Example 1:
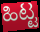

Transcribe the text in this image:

ಹಿಟ್ಟ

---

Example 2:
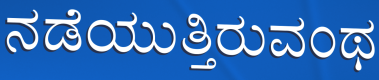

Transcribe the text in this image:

ನಡೆಯುತ್ತಿರುವಂಥ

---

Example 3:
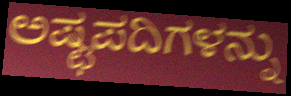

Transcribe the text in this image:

ಅಷ್ಟಪದಿಗಳನ್ನು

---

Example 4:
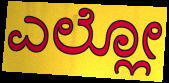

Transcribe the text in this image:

ಎಲ್ಲೋ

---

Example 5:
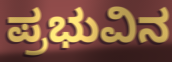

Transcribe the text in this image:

ಪ್ರಭುವಿನ